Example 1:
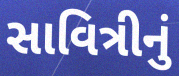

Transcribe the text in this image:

સાવિત્રીનું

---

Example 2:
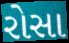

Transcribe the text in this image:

રોસા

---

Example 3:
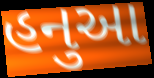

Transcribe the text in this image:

હનુઆ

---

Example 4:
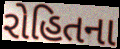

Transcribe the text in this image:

રોહિતના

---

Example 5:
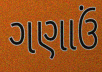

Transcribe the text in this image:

ગણાઉં